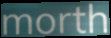
morth